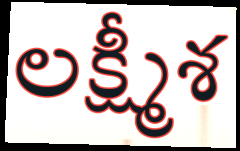
లక్ష్మీశ